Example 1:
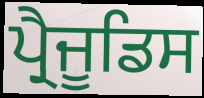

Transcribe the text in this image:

ਪ੍ਰੈਜੂਡਿਸ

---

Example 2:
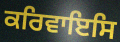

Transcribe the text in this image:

ਕਰਿਵਾਇਸਿ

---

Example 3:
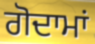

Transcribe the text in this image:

ਗੋਦਾਮਾਂ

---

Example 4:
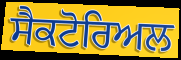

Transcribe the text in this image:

ਸੈਕਟੋਰਿਅਲ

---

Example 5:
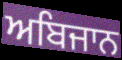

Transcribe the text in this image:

ਅਬਿਜਾਨ